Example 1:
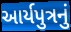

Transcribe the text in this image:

આર્યપુત્રનું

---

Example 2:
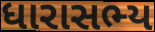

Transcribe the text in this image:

ધારાસભ્ય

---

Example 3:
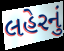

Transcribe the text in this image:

લહેરનું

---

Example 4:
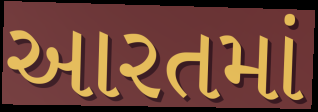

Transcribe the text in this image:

આરતમાં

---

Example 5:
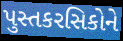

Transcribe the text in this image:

પુસ્તકરસિકોને